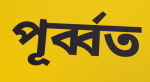
পূৰ্ব্বত